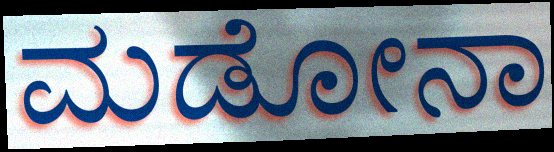
ಮಡೋನಾ